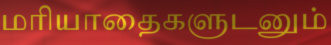
மரியாதைகளுடனும்